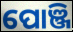
ପୋଞ୍ଜି